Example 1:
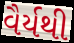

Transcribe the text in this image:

વૈર્યથી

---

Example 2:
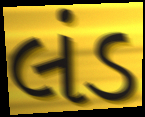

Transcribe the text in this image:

લંડ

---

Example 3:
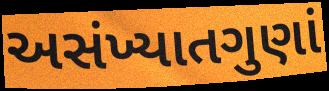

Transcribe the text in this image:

અસંખ્યાતગુણાં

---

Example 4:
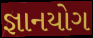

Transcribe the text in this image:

જ્ઞાનયોગ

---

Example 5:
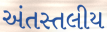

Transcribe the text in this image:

અંતસ્તલીય